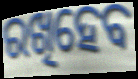
ରଖିହେବ